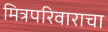
मित्रपरिवाराचा